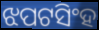
ଝପଟସିଂହ